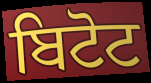
ਬਿਟੋਟ